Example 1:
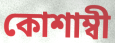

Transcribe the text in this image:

কোশাম্বী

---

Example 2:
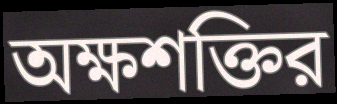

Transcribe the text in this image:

অক্ষশক্তির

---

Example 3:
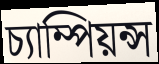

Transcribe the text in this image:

চ্যাম্পিয়ন্স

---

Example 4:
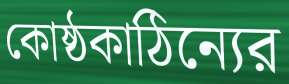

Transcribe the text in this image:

কোষ্ঠকাঠিন্যের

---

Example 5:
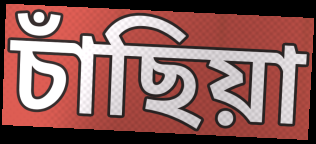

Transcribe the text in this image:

চাঁছিয়া